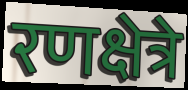
रणक्षेत्रे